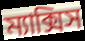
ম্যাক্সিস